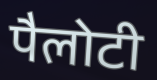
पैलोटी